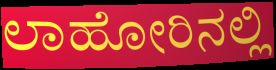
ಲಾಹೋರಿನಲ್ಲಿ